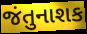
જંતુનાશક